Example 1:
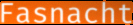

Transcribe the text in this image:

Fasnacht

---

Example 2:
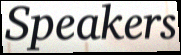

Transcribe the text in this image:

Speakers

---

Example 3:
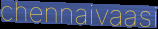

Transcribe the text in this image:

chennaivaasi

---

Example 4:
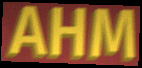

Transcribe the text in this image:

AHM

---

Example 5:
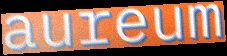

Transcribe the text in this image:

aureum